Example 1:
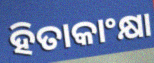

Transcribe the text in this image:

ହିତାକାଂକ୍ଷା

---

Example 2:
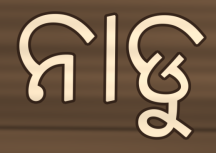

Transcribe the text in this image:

ନାଡୁ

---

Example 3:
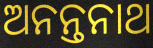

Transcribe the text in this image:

ଅନନ୍ତନାଥ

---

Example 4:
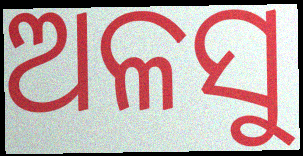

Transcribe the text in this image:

ଅଳସୁ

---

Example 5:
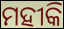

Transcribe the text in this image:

ମହୀକି